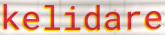
kelidare